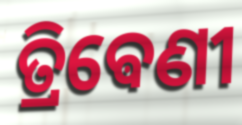
ତ୍ରିଵେଣୀ